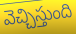
వెచ్చిస్తుంది